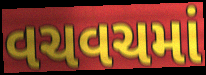
વચવચમાં